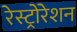
रेस्ट्रोरेशन